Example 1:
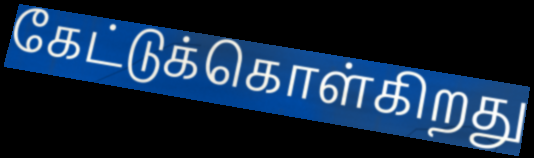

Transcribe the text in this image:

கேட்டுக்கொள்கிறது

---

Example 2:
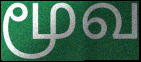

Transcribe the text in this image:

மூவ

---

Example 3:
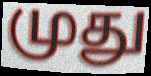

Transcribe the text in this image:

முது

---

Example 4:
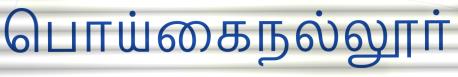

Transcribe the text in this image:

பொய்கைநல்லூர்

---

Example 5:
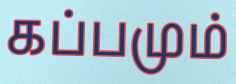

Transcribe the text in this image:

கப்பமும்